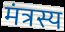
मंत्रस्य